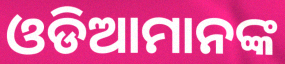
ଓଡିଆମାନଙ୍କ